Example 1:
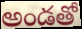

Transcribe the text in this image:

అండతో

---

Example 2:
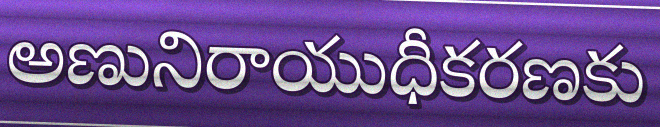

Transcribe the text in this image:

అణునిరాయుధీకరణకు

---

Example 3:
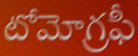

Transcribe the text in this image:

టోమోగ్రఫీ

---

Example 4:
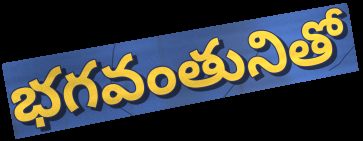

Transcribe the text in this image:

భగవంతునితో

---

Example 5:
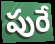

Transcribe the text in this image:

పురే